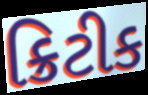
ક્રિટીક